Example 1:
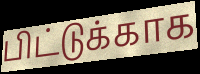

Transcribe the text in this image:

பிட்டுக்காக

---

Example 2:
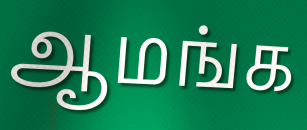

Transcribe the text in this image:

ஆமங்க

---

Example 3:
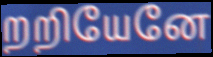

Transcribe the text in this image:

றறியேனே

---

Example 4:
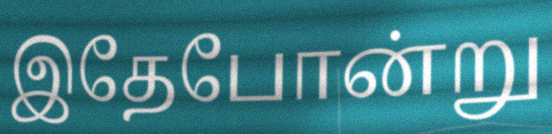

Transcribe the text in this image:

இதேபோன்று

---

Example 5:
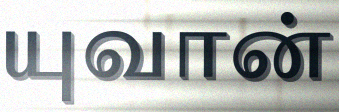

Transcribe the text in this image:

யுவான்